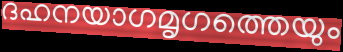
ദഹനയാഗമൃഗത്തെയും